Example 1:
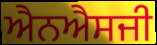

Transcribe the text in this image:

ਐਨਐਸਜੀ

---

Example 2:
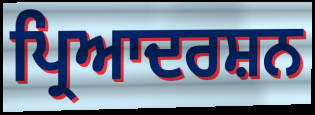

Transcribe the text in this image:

ਪ੍ਰਿਆਦਰਸ਼ਨ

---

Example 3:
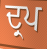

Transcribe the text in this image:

ਦ੍ਰਪ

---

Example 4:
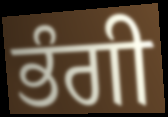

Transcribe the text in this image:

ਭੰਗੀ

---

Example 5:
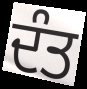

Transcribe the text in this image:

ਦੰਤ